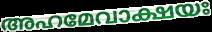
അഹമേവാക്ഷയഃ